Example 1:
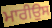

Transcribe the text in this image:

ਮਾਰੀਉਸ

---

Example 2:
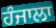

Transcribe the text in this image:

ਹੰਜਾਲਾ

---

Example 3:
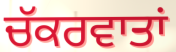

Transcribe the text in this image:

ਚੱਕਰਵਾਤਾਂ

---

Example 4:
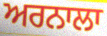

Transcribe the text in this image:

ਅਰਨਾਲਾ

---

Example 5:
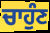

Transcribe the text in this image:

ਚਾਹੁੰਣ